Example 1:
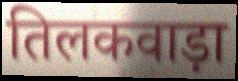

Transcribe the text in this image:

तिलकवाड़ा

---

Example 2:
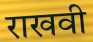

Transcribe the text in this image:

राखवी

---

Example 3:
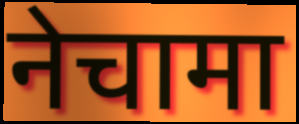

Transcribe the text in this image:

नेचामा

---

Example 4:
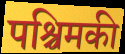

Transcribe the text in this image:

पश्चिमकी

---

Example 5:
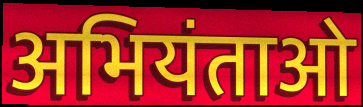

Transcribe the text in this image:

अभियंताओ